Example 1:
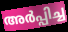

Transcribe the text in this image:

അർപ്പിച്ച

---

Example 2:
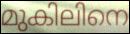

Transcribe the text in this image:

മുകിലിനെ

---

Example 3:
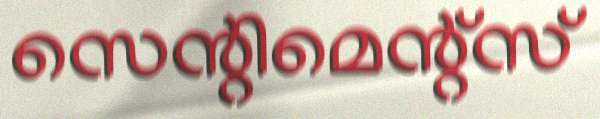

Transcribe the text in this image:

സെന്റിമെന്റ്സ്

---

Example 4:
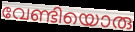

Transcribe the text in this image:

വേണ്ടിയൊരു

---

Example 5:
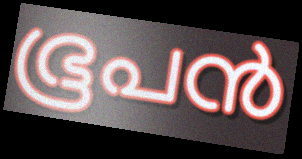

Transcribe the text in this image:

ഭൂപൻ